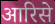
आरिसे